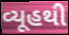
વ્યૂહથી